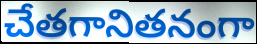
చేతగానితనంగా